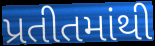
પ્રતીતમાંથી